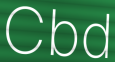
Cbd